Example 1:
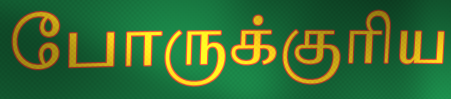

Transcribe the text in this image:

போருக்குரிய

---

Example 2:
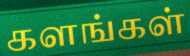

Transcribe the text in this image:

களங்கள்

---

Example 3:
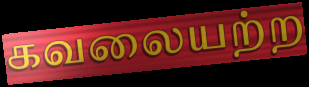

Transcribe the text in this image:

கவலையற்ற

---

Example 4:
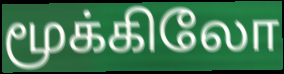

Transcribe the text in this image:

மூக்கிலோ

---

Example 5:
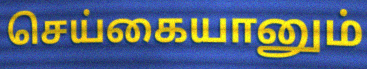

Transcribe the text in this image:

செய்கையானும்